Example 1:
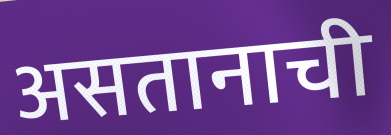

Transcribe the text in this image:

असतानाची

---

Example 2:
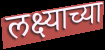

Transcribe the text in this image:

लक्ष्याच्या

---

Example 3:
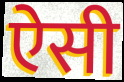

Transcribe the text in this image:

ऐसी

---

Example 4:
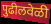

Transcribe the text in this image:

पुढीलवेळी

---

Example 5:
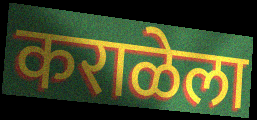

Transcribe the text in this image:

कराळेला